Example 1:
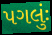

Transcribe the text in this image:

પગલુંઃ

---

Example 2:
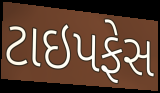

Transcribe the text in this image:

ટાઇપફેસ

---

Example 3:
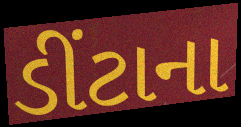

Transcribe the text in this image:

ડીંટાના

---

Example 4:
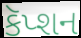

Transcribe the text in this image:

કૅપ્શન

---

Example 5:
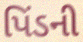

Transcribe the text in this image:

પિંડની